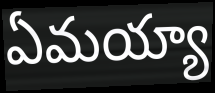
ఏమయ్యా